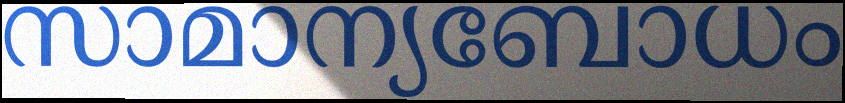
സാമാന്യബോധം